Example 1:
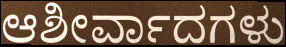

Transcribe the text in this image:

ಆಶೀರ್ವಾದಗಳು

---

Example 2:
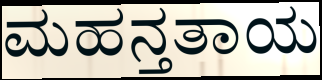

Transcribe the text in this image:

ಮಹನ್ತತಾಯ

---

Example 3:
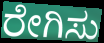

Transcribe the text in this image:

ರೇಗಿಸು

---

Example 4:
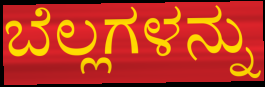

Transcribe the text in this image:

ಬೆಲ್ಲಗಳನ್ನು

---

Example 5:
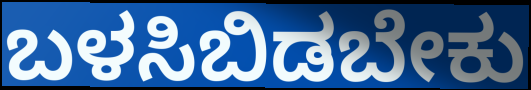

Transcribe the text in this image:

ಬಳಸಿಬಿಡಬೇಕು